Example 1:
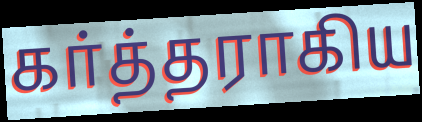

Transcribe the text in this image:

கர்த்தராகிய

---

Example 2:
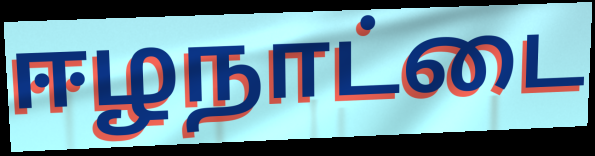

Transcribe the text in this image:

ஈழநாட்டை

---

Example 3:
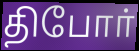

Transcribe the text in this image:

திபோர்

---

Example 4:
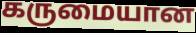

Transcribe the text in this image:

கருமையான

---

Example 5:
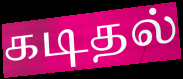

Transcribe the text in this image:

கடிதல்